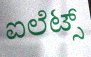
ಐಲೆಟ್ಸ್